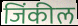
जिंकील